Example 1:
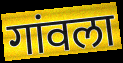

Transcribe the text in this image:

गांवला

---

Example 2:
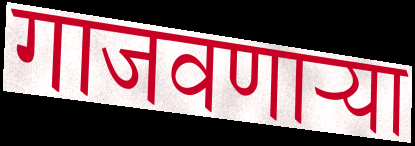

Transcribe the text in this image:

गाजवणाऱ्या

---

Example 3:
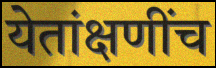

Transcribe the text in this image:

येतांक्षणींच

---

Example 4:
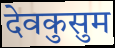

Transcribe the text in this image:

देवकुसुम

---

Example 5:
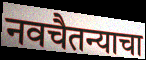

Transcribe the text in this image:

नवचैतन्याचा